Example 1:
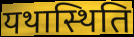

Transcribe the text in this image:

यथास्थिति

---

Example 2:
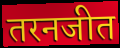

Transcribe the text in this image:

तरनजीत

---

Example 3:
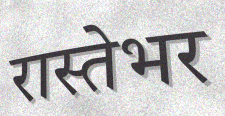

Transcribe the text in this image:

रास्तेभर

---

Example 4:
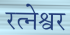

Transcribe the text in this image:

रत्नेश्वर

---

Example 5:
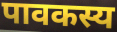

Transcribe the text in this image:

पावकस्य